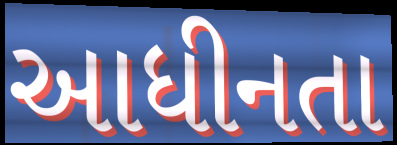
આધીનતા